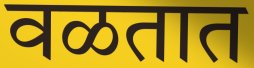
वळतात